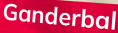
Ganderbal